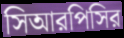
সিআরপিসির